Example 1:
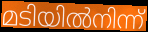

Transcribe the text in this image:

മടിയിൽനിന്ന്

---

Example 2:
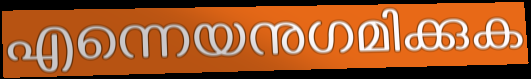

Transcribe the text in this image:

എന്നെയനുഗമിക്കുക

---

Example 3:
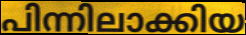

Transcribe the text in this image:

പിന്നിലാക്കിയ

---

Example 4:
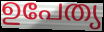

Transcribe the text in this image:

ഉപേത്യ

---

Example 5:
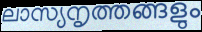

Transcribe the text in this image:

ലാസ്യനൃത്തങ്ങളും